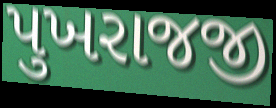
પુખરાજજી